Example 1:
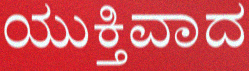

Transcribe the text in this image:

ಯುಕ್ತಿವಾದ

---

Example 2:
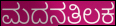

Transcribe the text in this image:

ಮದನತಿಲಕ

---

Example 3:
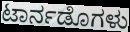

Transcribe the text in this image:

ಟಾರ್ನಡೊಗಳು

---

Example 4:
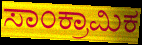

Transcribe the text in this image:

ಸಾಂಕ್ರಾಮಿಕ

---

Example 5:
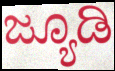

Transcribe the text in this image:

ಜ್ಯೂಡಿ